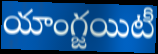
యాంగ్జయిటీ